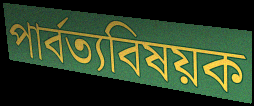
পার্বত্যবিষয়ক